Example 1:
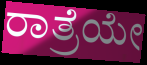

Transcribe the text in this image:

ರಾತ್ರೆಯೇ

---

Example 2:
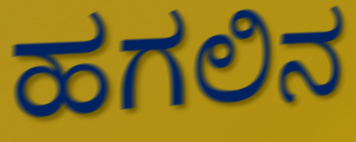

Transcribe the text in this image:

ಹಗಲಿನ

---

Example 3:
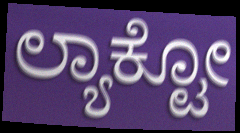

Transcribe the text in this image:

ಲ್ಯಾಕ್ಟೋ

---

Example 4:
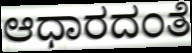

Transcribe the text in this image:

ಆಧಾರದಂತೆ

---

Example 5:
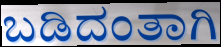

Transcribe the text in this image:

ಬಡಿದಂತಾಗಿ